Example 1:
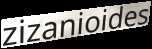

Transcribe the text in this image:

zizanioides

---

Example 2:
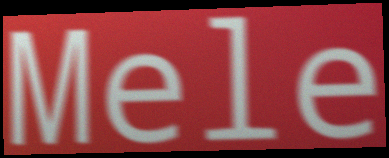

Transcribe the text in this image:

Mele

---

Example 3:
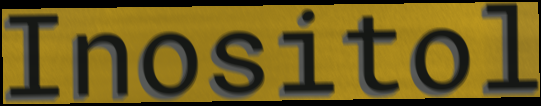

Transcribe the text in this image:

Inositol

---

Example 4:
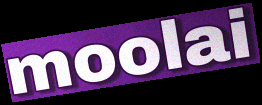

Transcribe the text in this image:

moolai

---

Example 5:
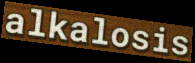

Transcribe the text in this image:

alkalosis